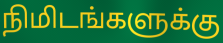
நிமிடங்களுக்கு